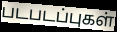
படபடப்புகள்